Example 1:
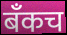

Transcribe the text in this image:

बँकच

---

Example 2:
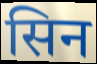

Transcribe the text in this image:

सिन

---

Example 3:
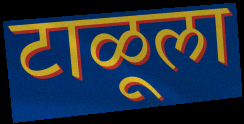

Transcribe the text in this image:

टाळूला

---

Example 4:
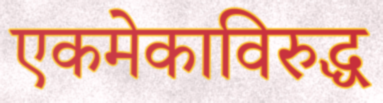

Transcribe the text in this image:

एकमेकाविरुद्ध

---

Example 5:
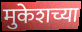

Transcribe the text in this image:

मुकेशच्या